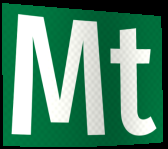
Mt